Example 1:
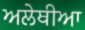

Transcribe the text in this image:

ਅਲੇਥੀਆ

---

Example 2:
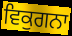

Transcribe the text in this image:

ਵਿਕੁਗਨਾ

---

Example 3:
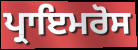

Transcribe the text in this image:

ਪ੍ਰਾਇਮਰੋਸ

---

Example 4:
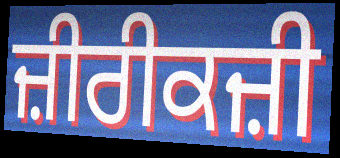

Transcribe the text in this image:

ਜ਼ੀਰੀਕਜ਼ੀ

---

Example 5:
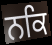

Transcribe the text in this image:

ਨਕਿ